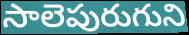
సాలెపురుగుని